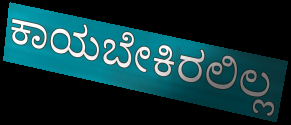
ಕಾಯಬೇಕಿರಲಿಲ್ಲ